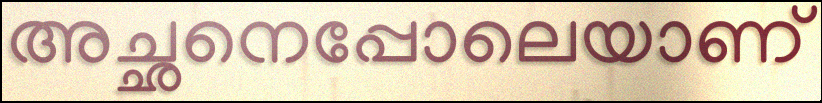
അച്ഛനെപ്പോലെയാണ്